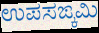
ಉಪಸಙ್ಕಮಿ